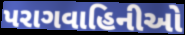
પરાગવાહિનીઓ